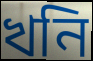
খনি